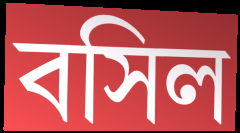
বসিল